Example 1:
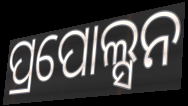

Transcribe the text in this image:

ପ୍ରପୋଲ୍ସନ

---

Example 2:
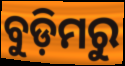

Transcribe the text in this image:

ବୁଡ଼ିମରୁ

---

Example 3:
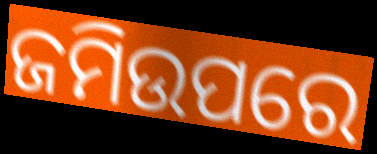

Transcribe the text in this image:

ଜମିଉପରେ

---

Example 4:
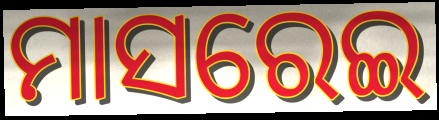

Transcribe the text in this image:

ମାସରେଇ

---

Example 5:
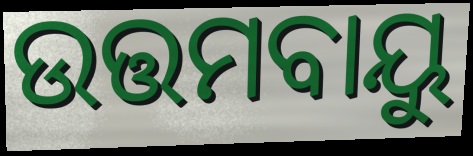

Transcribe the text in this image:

ଉତ୍ତମବାୟୁ